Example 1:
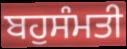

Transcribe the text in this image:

ਬਹੁਸੰਮਤੀ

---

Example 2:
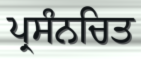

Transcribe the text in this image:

ਪ੍ਰਸੰਨਚਿਤ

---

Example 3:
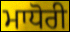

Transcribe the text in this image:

ਮਾਧੋਰੀ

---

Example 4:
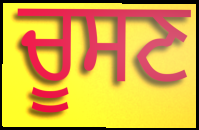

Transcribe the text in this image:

ਚੂਸਣ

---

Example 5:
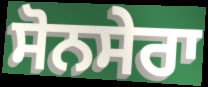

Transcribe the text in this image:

ਸੋਨਸੇਰਾ